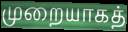
முறையாகத்